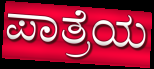
ಪಾತ್ರೆಯ